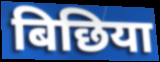
बिछिया